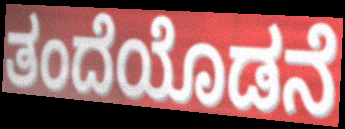
ತಂದೆಯೊಡನೆ